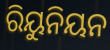
ରିୟୁନିୟନ